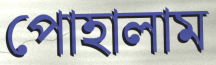
পোহালাম